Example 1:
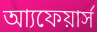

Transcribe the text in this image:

আ্যফেয়ার্স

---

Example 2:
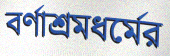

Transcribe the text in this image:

বর্ণাশ্রমধর্মের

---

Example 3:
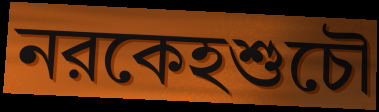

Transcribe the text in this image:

নরকেহশুচৌ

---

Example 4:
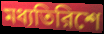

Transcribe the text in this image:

মধ্যতিরিশে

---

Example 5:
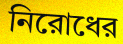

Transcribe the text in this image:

নিরোধের